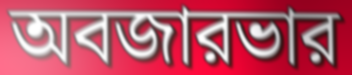
অবজারভার